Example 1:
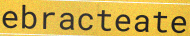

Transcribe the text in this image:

ebracteate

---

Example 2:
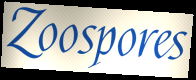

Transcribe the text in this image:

Zoospores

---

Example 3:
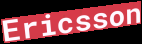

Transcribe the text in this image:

Ericsson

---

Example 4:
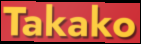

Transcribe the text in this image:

Takako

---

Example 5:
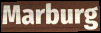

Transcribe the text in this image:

Marburg